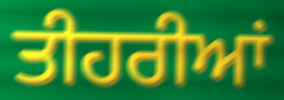
ਤੀਹਰੀਆਂ